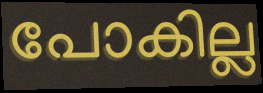
പോകില്ല